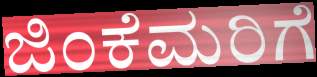
ಜಿಂಕೆಮರಿಗೆ